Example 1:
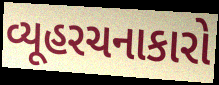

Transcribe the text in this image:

વ્યૂહરચનાકારો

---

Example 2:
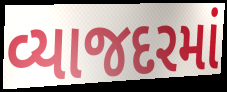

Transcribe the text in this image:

વ્યાજદરમાં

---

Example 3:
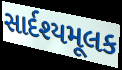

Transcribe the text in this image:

સાર્દશ્યમૂલક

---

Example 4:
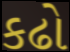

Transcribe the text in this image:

કઢો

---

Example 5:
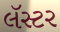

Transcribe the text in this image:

લૅસ્ટર